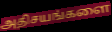
அதிசயங்களை